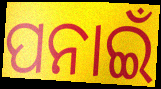
ପନାଇଁ